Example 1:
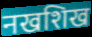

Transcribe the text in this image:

नखशिख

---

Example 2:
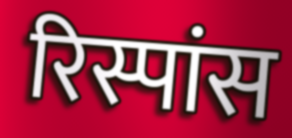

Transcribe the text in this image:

रिस्पांस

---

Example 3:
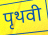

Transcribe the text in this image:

पृथवी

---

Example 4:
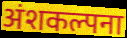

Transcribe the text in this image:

अंशकल्पना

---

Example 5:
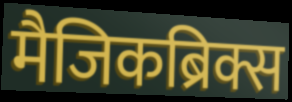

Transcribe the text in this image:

मैजिकब्रिक्स